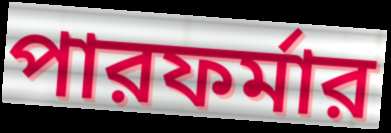
পারফর্মার